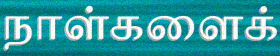
நாள்களைக்